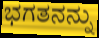
ಭಗತನನ್ನು